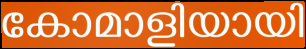
കോമാളിയായി